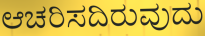
ಆಚರಿಸದಿರುವುದು